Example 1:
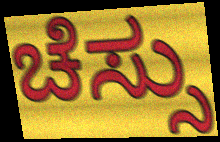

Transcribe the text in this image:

ಚೆಸ್ಸು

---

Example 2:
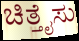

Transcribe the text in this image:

ಚಿತ್ತೈಸು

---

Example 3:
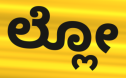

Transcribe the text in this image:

ಲ್ಲೋ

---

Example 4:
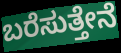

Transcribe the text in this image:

ಬರೆಸುತ್ತೇನೆ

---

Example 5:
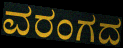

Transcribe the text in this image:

ವರಂಗದ